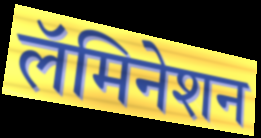
लॅमिनेशन